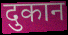
दुकान